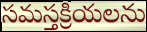
సమస్తక్రియలను